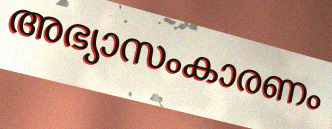
അഭ്യാസംകാരണം